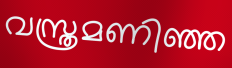
വസ്ത്രമണിഞ്ഞ